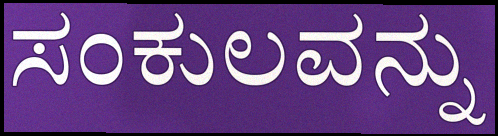
ಸಂಕುಲವನ್ನು